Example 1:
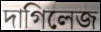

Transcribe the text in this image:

দাগিলেজ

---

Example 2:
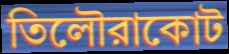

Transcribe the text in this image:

তিলৌরাকোট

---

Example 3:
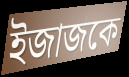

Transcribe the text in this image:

ইজাজকে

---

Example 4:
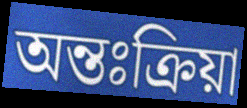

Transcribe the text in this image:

অন্তঃক্রিয়া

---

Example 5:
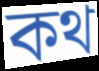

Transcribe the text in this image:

কথ